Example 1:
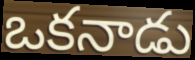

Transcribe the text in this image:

ఒకనాడు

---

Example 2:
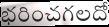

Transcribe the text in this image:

భరించగలదో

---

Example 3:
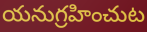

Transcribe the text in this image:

యనుగ్రహించుట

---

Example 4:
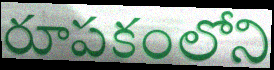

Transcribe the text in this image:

రూపకంలోని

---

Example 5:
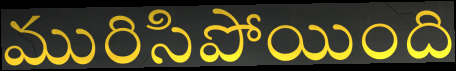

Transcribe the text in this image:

మురిసిపోయింది